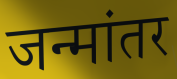
जन्मांतर